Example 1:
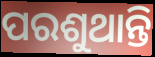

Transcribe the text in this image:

ପରଶୁଥାନ୍ତି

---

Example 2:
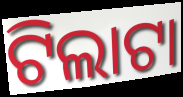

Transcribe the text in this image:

ଟିଲାଟା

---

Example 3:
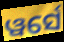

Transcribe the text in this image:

ୱର୍ସେ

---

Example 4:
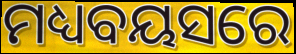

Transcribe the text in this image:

ମଧ୍ୟବୟସରେ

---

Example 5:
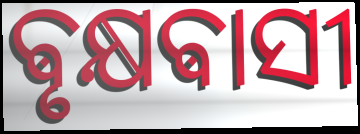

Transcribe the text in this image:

ଵୃକ୍ଷଵାସୀ